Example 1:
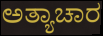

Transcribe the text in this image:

ಅತ್ಯಾಚಾರ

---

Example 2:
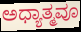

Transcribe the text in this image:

ಅಧ್ಯಾತ್ಮವೂ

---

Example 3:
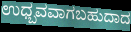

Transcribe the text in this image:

ಉಧ್ಬವವಾಗಬಹುದಾದ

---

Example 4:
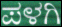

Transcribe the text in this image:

ಪಳಗಿ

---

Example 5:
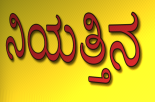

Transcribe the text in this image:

ನಿಯತ್ತಿನ